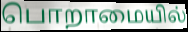
பொறாமையில்